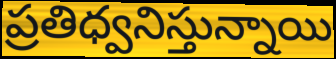
ప్రతిధ్వనిస్తున్నాయి